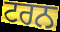
ਟਰਨ